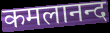
कमलानन्द